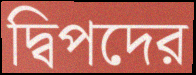
দ্বিপদের